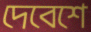
দেবেশে